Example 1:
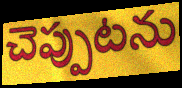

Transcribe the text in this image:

చెప్పుటను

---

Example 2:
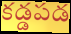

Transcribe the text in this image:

కడ్డపడ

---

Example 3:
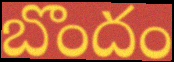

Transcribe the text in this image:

బొందం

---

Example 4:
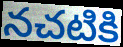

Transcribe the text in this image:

నచటికి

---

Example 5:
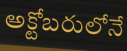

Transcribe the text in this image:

అక్టోబరులోనే